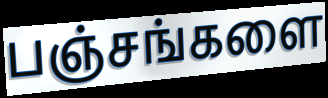
பஞ்சங்களை